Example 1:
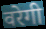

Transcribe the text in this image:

वरेगी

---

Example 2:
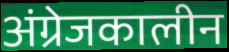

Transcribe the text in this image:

अंग्रेजकालीन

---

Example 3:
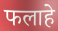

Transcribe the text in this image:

फलाहे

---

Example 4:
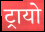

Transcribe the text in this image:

ट्रायो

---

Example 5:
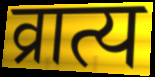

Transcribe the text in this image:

व्रात्य